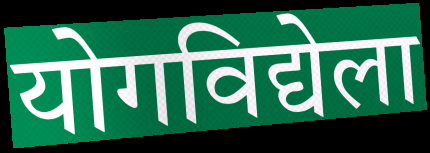
योगविद्येला